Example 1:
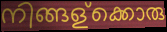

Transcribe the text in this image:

നിങ്ങള്ക്കൊരു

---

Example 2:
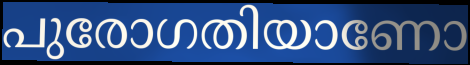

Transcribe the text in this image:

പുരോഗതിയാണോ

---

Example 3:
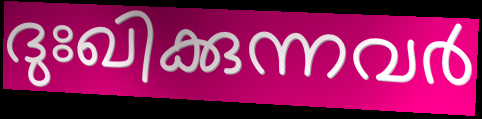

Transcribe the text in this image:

ദുഃഖിക്കുന്നവർ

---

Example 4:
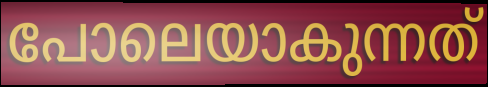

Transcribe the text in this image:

പോലെയാകുന്നത്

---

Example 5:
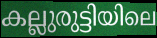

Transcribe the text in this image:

കല്ലുരുട്ടിയിലെ